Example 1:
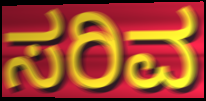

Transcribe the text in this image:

ಸರಿವ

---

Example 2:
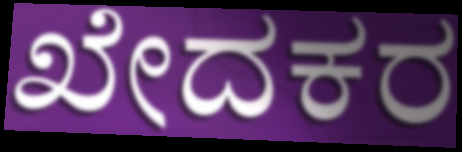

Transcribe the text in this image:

ಖೇದಕರ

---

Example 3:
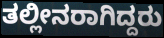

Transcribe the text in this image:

ತಲ್ಲೀನರಾಗಿದ್ದರು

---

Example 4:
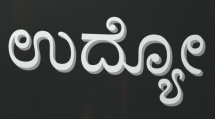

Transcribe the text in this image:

ಉದ್ಯೋ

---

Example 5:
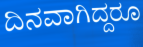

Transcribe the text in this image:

ದಿನವಾಗಿದ್ದರೂ